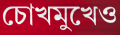
চোখমুখেও